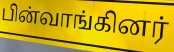
பின்வாங்கினர்